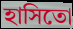
হাসিতো